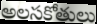
అలసకోతులు